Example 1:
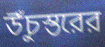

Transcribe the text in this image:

উঁচুস্তরের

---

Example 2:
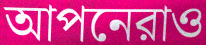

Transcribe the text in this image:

আপনেরাও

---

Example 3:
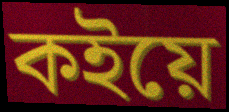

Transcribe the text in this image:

কইয়ে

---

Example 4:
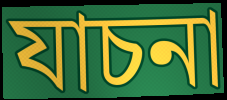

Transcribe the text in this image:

যাচনা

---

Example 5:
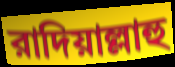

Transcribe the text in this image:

রাদিয়াল্লাহু